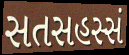
સતસહસ્સં